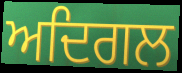
ਅਦਿਗਲ